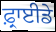
ਫ਼੍ਰਾਈਡੇ